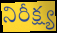
నిరీక్ష్య